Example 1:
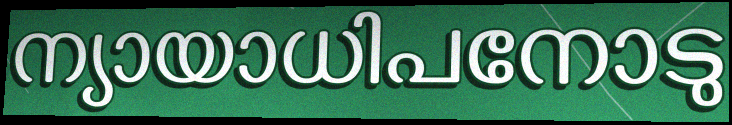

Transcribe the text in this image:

ന്യായാധിപനോടു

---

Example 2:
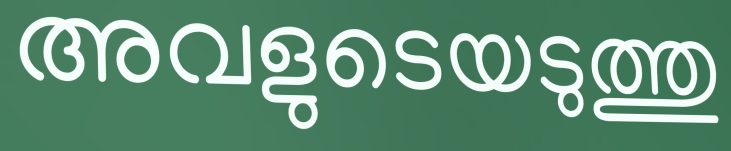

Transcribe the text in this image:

അവളുടെയടുത്തു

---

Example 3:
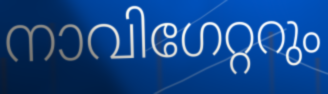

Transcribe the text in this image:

നാവിഗേറ്ററും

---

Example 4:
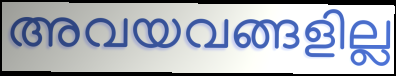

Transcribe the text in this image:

അവയവങ്ങളില്ല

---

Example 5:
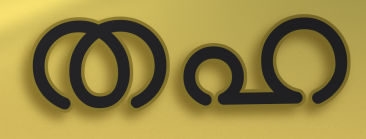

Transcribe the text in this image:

തഹ